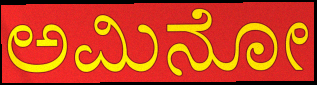
ಅಮಿನೋ